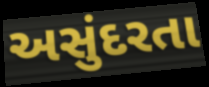
અસુંદરતા